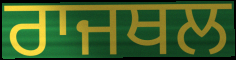
ਰਾਜਥਲ